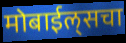
मोबाईल्सचा